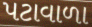
પટાવાળા